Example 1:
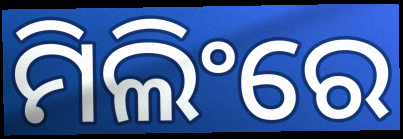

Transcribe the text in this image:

ମିଲିଂରେ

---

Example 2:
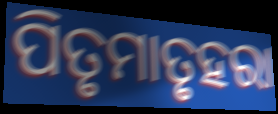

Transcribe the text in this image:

ପିତୃମାତୃହରା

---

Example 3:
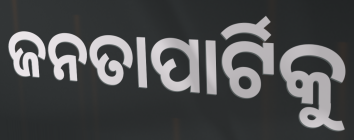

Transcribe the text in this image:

ଜନତାପାର୍ଟିକୁ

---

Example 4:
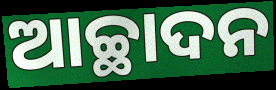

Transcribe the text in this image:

ଆଚ୍ଛାଦନ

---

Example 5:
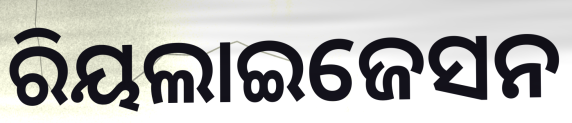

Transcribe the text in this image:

ରିୟଲାଇଜେସନ